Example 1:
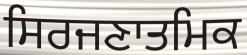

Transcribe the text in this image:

ਸਿਰਜਣਾਤਮਿਕ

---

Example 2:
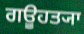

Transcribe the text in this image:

ਗਊਹਤ੍ਯਾ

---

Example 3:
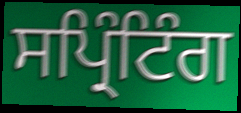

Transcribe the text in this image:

ਸਪ੍ਰਿੰਟਿੰਗ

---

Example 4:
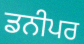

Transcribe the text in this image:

ਡਨੀਪਰ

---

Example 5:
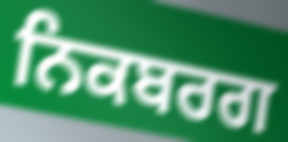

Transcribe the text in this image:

ਨਿਕਬਰਗ